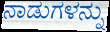
ನಾಡುಗಳನ್ನು